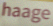
haage